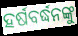
ହର୍ଷବର୍ଦ୍ଧନଙ୍କୁ